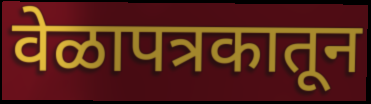
वेळापत्रकातून